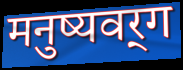
मनुष्यवर्ग